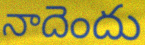
నాదెందు